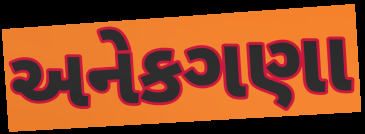
અનેકગણા